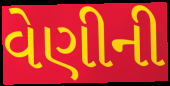
વેણીની